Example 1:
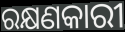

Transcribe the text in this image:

ରକ୍ଷଣକାରୀ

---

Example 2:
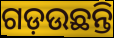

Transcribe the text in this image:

ଗଡ଼ଉଛନ୍ତି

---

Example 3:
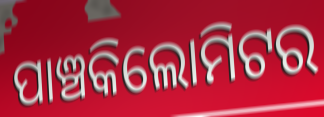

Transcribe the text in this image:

ପାଞ୍ଚକିଲୋମିଟର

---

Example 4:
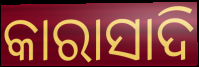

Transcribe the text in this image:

କାରାସାଦି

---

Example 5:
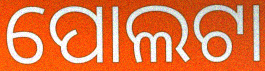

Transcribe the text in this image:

ପୋଲଟା